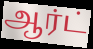
ஆர்ட்